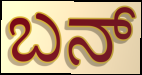
ಬನ್